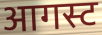
आगस्ट